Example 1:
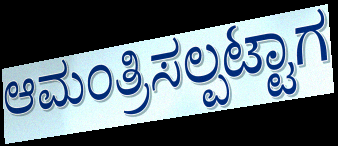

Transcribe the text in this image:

ಆಮಂತ್ರಿಸಲ್ಪಟ್ಟಾಗ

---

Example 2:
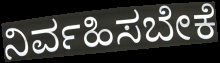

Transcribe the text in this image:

ನಿರ್ವಹಿಸಬೇಕೆ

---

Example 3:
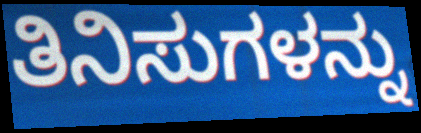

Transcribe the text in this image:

ತಿನಿಸುಗಳನ್ನು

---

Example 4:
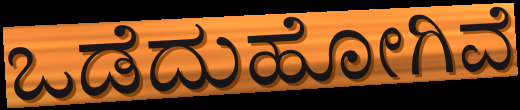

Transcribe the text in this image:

ಒಡೆದುಹೋಗಿವೆ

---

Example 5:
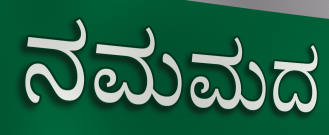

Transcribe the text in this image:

ನಮಮದ